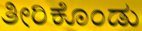
ತೀರಿಕೊಂಡು